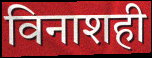
विनाशही